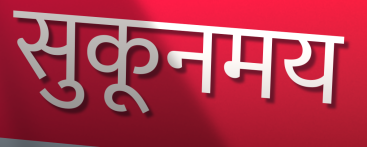
सुकूनमय